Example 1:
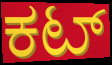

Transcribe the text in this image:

ಕಟ್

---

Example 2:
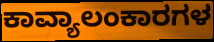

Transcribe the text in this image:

ಕಾವ್ಯಾಲಂಕಾರಗಳ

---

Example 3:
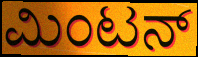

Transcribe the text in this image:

ಮಿಂಟನ್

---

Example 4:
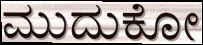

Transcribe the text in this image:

ಮುದುಕೋ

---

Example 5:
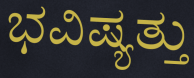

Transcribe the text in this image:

ಭವಿಷ್ಯತ್ತು